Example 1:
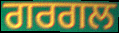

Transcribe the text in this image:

ਗਰਗਲ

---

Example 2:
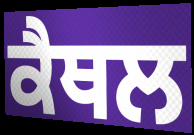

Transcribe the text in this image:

ਕੈਥਲ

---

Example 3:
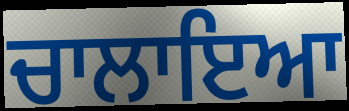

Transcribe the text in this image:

ਚਾਲਾਇਆ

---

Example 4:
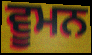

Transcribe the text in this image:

ਵੂਮਨ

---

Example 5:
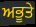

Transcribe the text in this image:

ਅਭੂਤੇ